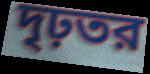
দৃঢ়তর